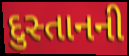
દુસ્તાનની